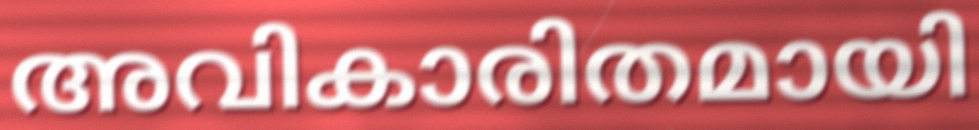
അവികാരിതമായി